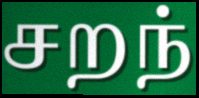
சறந்